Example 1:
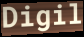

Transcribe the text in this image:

Digil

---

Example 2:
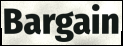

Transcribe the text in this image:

Bargain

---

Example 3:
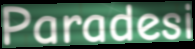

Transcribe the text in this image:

Paradesi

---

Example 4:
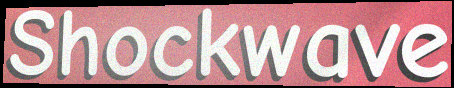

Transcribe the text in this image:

Shockwave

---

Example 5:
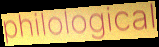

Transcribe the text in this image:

philological